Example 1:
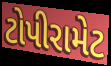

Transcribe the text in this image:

ટોપીરામેટ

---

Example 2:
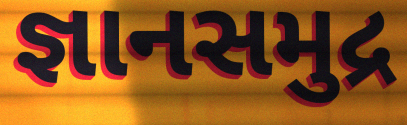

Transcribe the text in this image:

જ્ઞાનસમુદ્ર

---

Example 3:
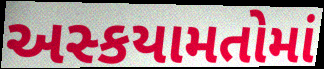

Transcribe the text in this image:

અસ્કયામતોમાં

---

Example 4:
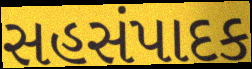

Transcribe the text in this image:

સહસંપાદક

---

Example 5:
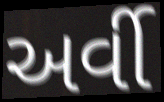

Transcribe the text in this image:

અર્વી